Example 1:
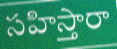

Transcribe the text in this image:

సహిస్తారా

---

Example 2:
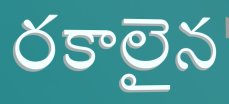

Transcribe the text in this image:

రకాలైన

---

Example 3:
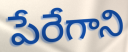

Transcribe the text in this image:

పేరేగాని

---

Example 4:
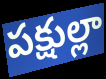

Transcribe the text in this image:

పక్షుల్లా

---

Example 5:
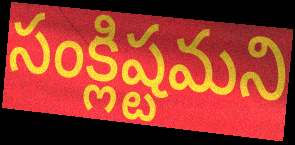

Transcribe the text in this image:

సంక్లిష్టమని